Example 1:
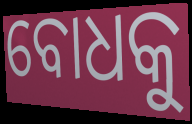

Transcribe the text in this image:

ବୋଧକୁ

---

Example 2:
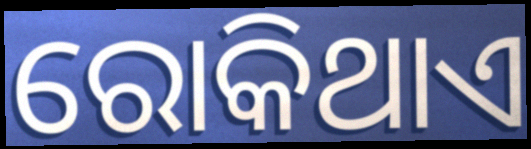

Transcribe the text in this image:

ରୋକିଥାଏ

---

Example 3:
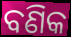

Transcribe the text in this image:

ବଣିକ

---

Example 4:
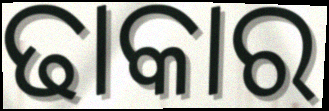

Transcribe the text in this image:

ଢାକାର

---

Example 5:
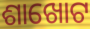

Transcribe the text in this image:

ଶାଖୋଟ